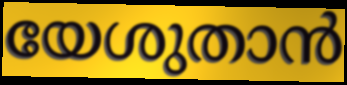
യേശുതാൻ